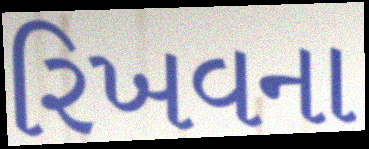
રિખવના